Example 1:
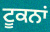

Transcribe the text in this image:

ਟੂਕਨਾਂ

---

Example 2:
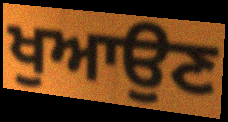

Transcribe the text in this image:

ਖੁਆਉਣ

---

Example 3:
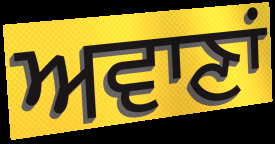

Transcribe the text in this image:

ਅਵਾਣਾਂ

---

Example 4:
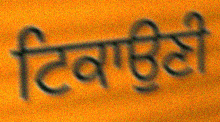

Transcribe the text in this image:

ਟਿਕਾਉਣੀ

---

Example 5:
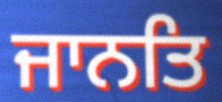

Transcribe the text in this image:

ਜਾਨਤਿ